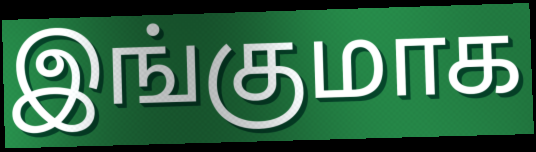
இங்குமாக